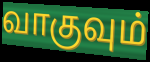
வாகுவும்